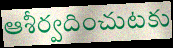
ఆశీర్వదించుటకు